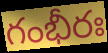
గంభీరః